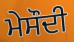
ਮੇਸੌਦੀ